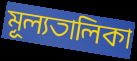
মূল্যতালিকা